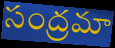
సంద్రమా